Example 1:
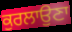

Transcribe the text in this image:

ਕੁਰਲਾਉਣਾ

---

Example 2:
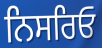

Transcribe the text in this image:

ਨਿਸਰਿਓ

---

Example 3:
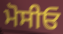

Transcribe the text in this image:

ਮੋਸੀਓ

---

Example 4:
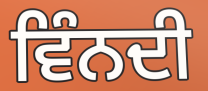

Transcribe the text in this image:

ਵਿੰਨਦੀ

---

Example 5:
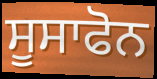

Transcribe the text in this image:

ਸੂਸਾਫੋਨ